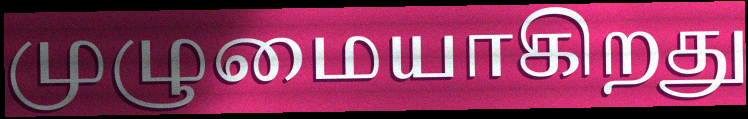
முழுமையாகிறது